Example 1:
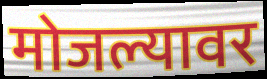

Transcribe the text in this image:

मोजल्यावर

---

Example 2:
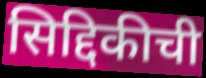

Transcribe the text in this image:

सिद्दिकीची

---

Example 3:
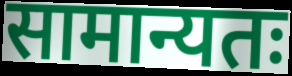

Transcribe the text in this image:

सामान्यतः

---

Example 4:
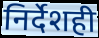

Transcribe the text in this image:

निर्देशही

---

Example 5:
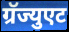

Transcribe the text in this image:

ग्रॅज्युएट